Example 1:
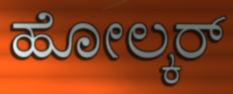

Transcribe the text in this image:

ಹೋಲ್ಕರ್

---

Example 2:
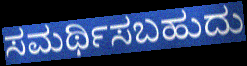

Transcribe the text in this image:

ಸಮರ್ಥಿಸಬಹುದು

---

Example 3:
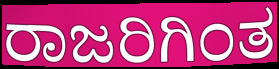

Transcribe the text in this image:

ರಾಜರಿಗಿಂತ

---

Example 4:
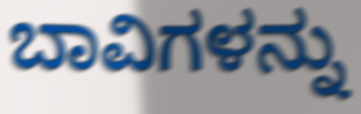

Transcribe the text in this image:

ಬಾವಿಗಳನ್ನು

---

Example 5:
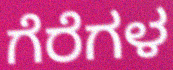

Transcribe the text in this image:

ಗೆರೆಗಳ